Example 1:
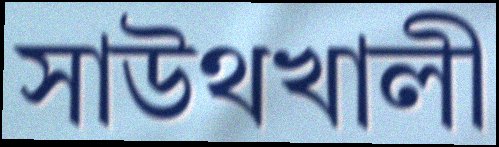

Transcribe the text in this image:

সাউথখালী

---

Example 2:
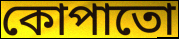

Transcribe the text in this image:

কোপাতো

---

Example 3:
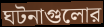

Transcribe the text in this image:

ঘটনাগুলোর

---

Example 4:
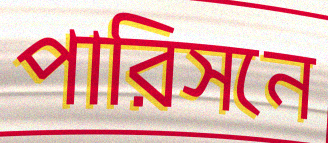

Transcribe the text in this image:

পারিসনে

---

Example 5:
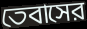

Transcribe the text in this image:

তেবাসের